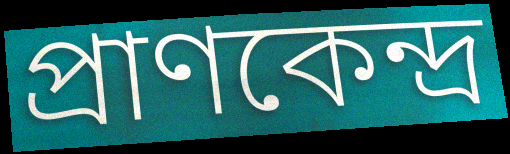
প্ৰাণকেন্দ্ৰ